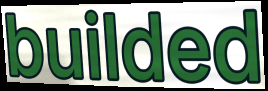
builded